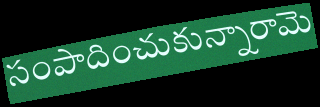
సంపాదించుకున్నారామె